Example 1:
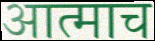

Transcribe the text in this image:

आत्माच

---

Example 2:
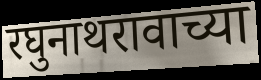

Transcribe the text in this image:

रघुनाथरावाच्या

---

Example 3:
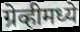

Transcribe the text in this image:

ग्रेव्हीमध्ये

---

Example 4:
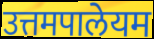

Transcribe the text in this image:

उत्तमपालेयम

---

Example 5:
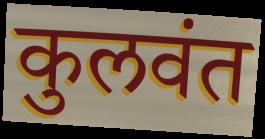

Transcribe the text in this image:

कुलवंत